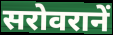
सरोवरानें